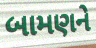
બામણને